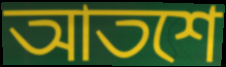
আতশে